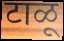
टाळू